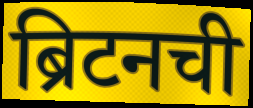
ब्रिटनची